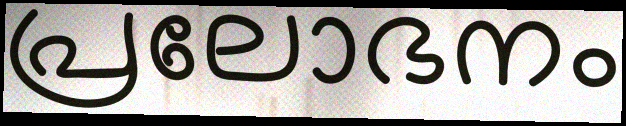
പ്രലോഭനം